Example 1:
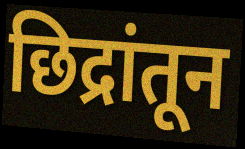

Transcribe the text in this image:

छिद्रांतून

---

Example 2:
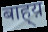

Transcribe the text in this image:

बाह्य़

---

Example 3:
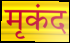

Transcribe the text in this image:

मृकंद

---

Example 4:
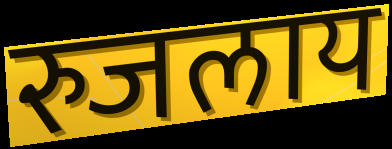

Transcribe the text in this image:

रुजलाय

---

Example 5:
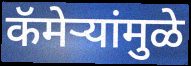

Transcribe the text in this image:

कॅमेऱ्यांमुळे